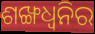
ଶଙ୍ଖଧ୍ବନିର